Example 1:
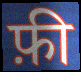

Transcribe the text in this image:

फ़ी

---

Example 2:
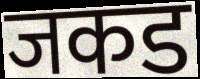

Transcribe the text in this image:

जकड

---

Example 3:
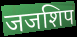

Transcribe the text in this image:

जजशिप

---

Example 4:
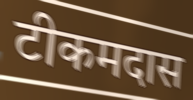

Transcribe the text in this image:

टीकमदास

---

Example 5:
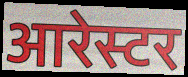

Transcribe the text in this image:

आरेस्टर